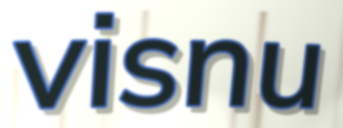
visnu